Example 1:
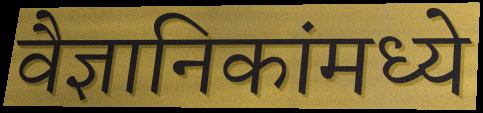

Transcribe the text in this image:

वैज्ञानिकांमध्ये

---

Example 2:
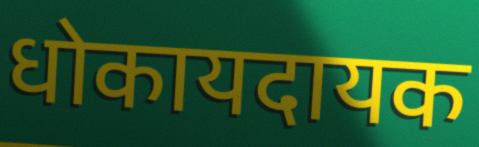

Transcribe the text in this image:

धोकायदायक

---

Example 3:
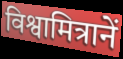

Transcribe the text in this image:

विश्वामित्रानें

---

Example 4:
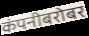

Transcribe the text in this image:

कंपनीबरोबर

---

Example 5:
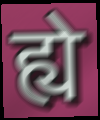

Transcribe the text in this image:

ह्ये